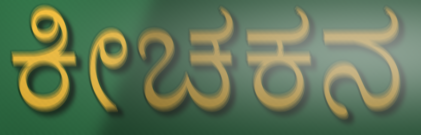
ಕೀಚಕನ